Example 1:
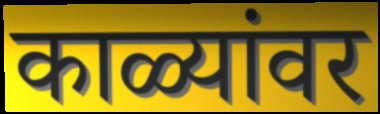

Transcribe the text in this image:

काळ्यांवर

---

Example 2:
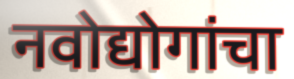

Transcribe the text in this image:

नवोद्योगांचा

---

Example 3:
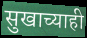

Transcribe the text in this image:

सुखाच्याही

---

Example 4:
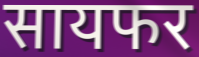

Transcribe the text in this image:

सायफर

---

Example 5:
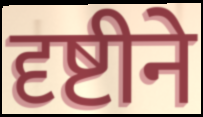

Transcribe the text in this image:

दृष्टीने